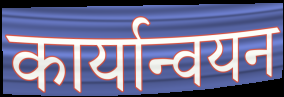
कार्यान्वयन